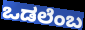
ಒಡಲೆಂಬ